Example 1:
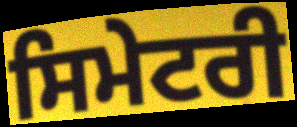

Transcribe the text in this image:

ਸਿਮੇਟਰੀ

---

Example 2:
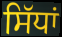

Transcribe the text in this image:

ਸਿੱਧਾਂ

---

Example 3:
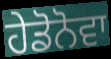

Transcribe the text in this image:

ਹੇਡੋਨੋਵਾ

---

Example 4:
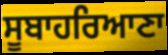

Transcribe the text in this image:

ਸੂਬਾਹਰਿਆਣਾ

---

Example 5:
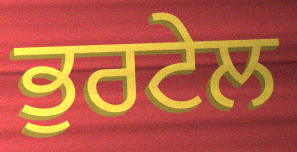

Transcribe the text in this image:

ਭੁਰਟੇਲ